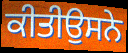
ਕੀਤੀਉਸਨੇ